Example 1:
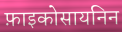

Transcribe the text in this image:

फ़ाइकोसायनिन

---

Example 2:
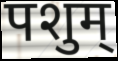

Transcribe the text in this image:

पशुम्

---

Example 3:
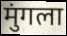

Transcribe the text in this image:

मुंगला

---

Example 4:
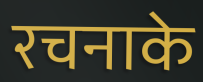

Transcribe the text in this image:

रचनाके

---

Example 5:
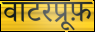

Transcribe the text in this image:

वाटरप्रूफ़